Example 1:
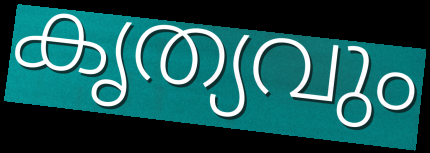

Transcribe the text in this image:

കൃത്യവും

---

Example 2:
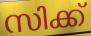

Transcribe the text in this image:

സിക്ക്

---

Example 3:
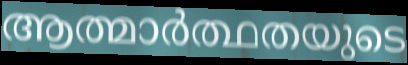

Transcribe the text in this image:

ആത്മാർത്ഥതയുടെ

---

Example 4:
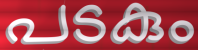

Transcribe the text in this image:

പടകും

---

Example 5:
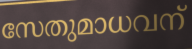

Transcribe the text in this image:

സേതുമാധവന്